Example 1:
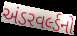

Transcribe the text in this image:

અંડરવર્લ્ડનો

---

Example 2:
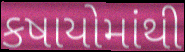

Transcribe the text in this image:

કષાયોમાંથી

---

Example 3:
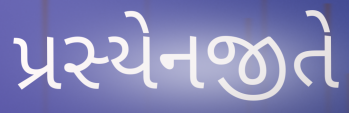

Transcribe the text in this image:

પ્રસ્યેનજીતે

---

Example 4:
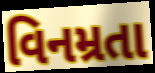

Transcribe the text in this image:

વિનમ્રતા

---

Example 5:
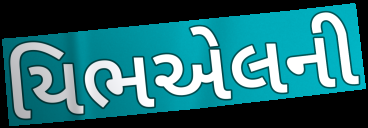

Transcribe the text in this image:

યિભએલની